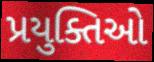
પ્રયુક્તિઓ